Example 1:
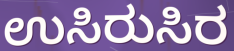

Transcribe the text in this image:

ಉಸಿರುಸಿರ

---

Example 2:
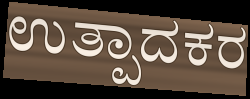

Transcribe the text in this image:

ಉತ್ಪಾದಕರ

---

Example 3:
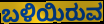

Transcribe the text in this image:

ಬಳಿಯಿರುವ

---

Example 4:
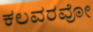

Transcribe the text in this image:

ಕಲವರವೋ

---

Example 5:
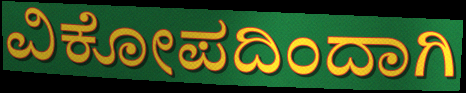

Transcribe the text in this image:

ವಿಕೋಪದಿಂದಾಗಿ